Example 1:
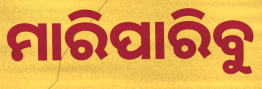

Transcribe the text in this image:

ମାରିପାରିବୁ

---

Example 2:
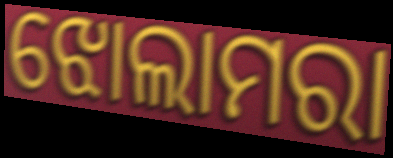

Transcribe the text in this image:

ଝୋଲାମରା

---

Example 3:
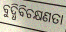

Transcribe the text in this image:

ବୁଦ୍ଧିବିଚକ୍ଷଣତା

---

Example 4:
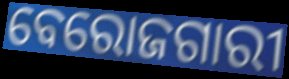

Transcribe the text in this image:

ବେରୋଜଗାରୀ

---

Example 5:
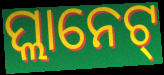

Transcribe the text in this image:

ପ୍ଲାନେଟ୍